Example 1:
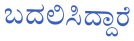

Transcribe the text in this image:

ಬದಲಿಸಿದ್ದಾರೆ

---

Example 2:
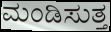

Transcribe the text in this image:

ಮಂಡಿಸುತ್ತ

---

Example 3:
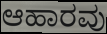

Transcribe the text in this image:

ಆಹಾರವು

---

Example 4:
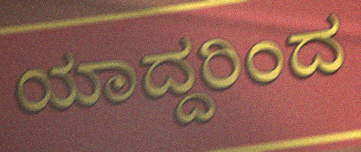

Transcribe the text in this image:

ಯಾದ್ದರಿಂದ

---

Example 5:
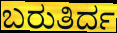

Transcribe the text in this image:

ಬರುತಿರ್ದ